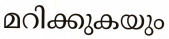
മറിക്കുകയും